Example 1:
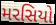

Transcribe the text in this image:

મરસિયો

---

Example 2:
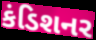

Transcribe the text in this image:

કંડિશનર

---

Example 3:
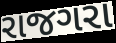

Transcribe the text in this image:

રાજગરા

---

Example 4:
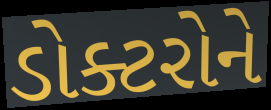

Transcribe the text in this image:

ડોક્ટરોને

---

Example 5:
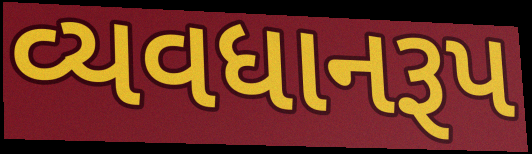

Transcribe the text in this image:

વ્યવધાનરૂપ